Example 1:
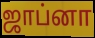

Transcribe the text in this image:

ஜாப்னா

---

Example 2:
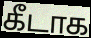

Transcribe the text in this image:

கீடாக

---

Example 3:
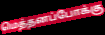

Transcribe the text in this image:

மெத்தனப்போக்கு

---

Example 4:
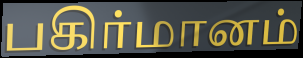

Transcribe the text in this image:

பகிர்மானம்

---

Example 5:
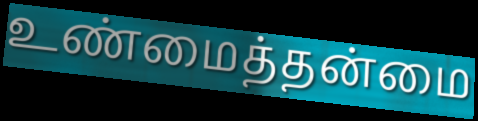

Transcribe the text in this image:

உண்மைத்தன்மை